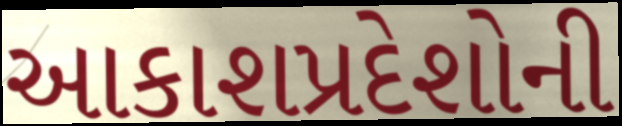
આકાશપ્રદેશોની